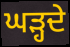
ਘੜ੍ਹਦੇ